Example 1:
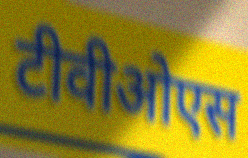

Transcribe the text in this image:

टीवीओएस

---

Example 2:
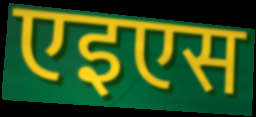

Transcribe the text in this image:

एइएस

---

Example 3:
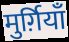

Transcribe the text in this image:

मुर्ग़ियाँ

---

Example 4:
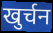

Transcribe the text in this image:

खुर्चन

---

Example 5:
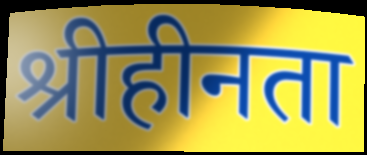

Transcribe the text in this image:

श्रीहीनता